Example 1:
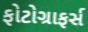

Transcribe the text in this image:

ફોટોગ્રાફર્સ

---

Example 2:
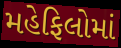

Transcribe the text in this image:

મહેફિલોમાં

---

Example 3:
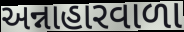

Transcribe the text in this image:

અન્નાહારવાળા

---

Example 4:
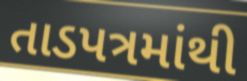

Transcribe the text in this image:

તાડપત્રમાંથી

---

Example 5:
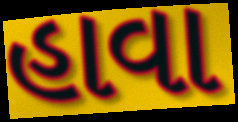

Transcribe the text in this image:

હાવા